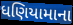
ધણિયામાના